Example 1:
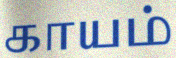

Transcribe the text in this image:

காயம்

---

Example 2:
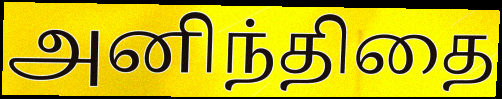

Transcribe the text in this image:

அனிந்திதை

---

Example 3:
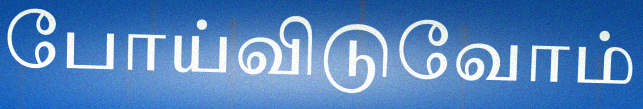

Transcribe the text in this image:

போய்விடுவோம்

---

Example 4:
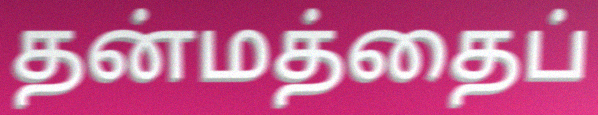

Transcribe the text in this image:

தன்மத்தைப்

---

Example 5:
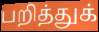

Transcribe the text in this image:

பறித்துக்